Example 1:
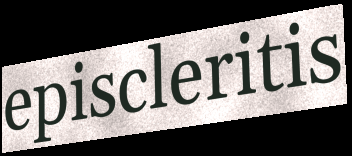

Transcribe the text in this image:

episcleritis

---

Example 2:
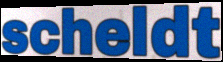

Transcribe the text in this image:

scheldt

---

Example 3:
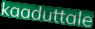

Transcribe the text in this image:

kaaduttale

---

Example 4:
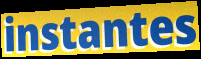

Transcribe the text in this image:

instantes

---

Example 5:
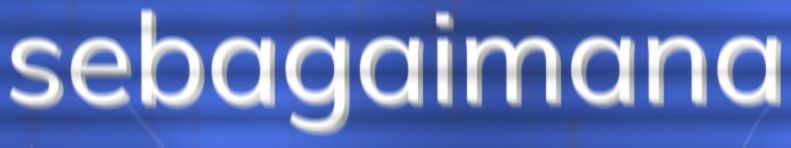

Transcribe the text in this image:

sebagaimana